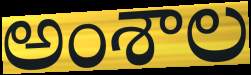
అంశాల